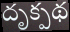
దృక్పథ